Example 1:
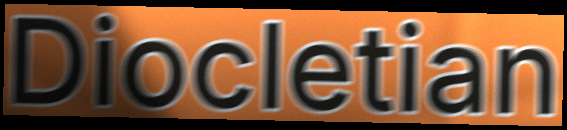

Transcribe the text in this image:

Diocletian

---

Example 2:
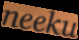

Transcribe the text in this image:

neeku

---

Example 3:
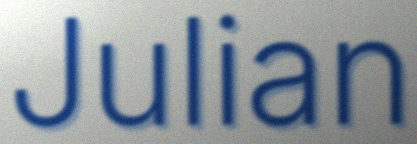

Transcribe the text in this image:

Julian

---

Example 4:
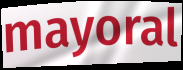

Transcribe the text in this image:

mayoral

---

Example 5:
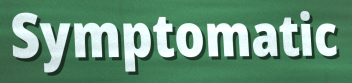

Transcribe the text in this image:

Symptomatic